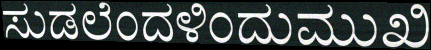
ಸುಡಲೆಂದಳಿಂದುಮುಖಿ